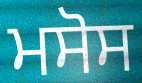
ਮਸੋਸ